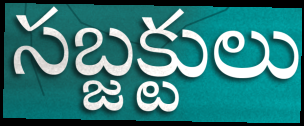
సబ్జక్టులు